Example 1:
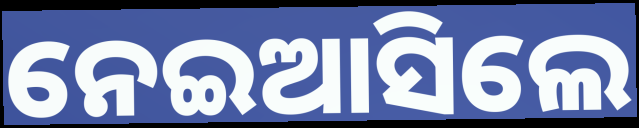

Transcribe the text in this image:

ନେଇଆସିଲେ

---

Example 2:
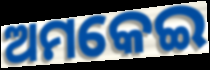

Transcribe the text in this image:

ଅମକେଇ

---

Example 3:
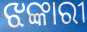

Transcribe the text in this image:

ଝଙ୍କାରୀ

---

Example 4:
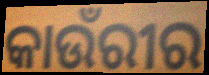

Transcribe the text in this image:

କାଉଁରୀର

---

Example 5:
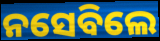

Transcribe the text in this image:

ନସେବିଲେ